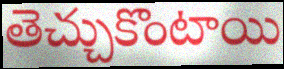
తెచ్చుకొంటాయి